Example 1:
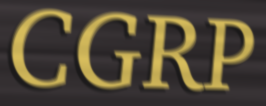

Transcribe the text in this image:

CGRP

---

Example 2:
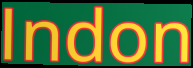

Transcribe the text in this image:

Indon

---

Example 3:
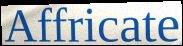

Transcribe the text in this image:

Affricate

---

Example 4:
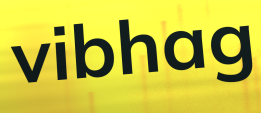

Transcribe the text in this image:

vibhag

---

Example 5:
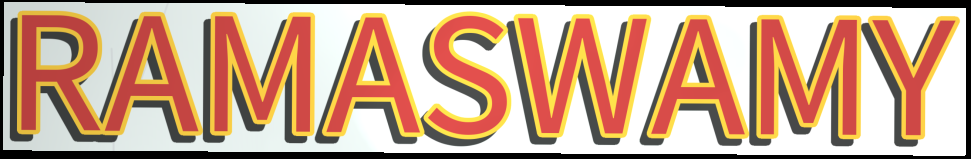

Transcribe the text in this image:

RAMASWAMY